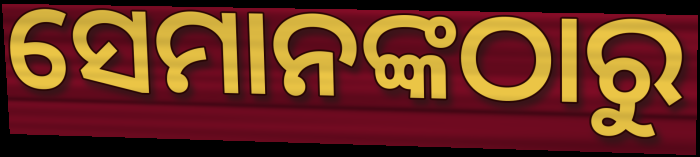
ସେମାନଙ୍କଠାରୁ